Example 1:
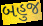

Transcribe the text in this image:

બહુજ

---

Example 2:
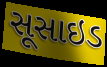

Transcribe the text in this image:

સૂસાઇડ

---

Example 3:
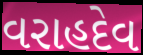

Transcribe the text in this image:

વરાહદેવ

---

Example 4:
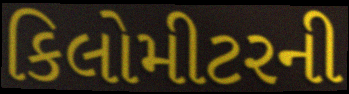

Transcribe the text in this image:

કિલોમીટરની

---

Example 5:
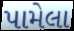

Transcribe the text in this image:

પામેલા